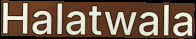
Halatwala